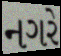
નગરે